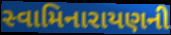
સ્વામિનારાયણની